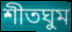
শীতঘুম